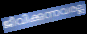
ജീവിക്കുന്നവരല്ല